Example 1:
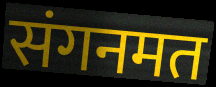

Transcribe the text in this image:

संगनमत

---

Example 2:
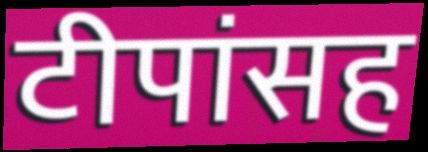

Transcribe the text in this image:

टीपांसह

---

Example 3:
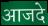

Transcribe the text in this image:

आजदे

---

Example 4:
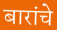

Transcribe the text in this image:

बारांचे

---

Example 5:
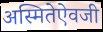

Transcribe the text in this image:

अस्मितेऐवजी